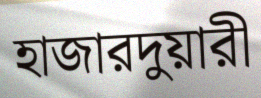
হাজারদুয়ারী